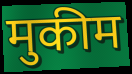
मुकीम